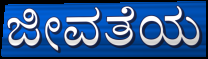
ಜೀವತೆಯ